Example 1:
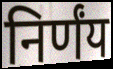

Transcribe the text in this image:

निर्णंय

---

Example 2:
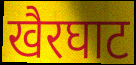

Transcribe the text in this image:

खैरघाट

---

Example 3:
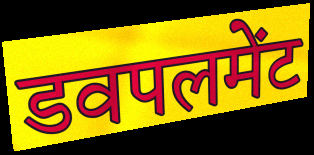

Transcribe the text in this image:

डवपलमेंट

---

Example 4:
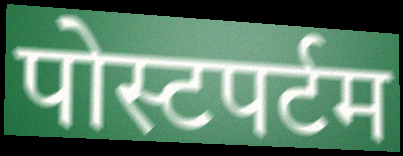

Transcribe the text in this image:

पोस्टपर्टम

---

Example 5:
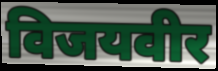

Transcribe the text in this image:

विजयवीर